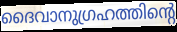
ദൈവാനുഗ്രഹത്തിന്റെ